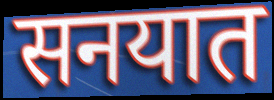
सनयात